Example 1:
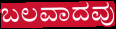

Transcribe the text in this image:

ಬಲವಾದವು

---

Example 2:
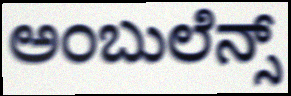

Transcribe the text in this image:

ಅಂಬುಲೆನ್ಸ್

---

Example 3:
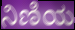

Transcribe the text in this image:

ನಿಣಿಯ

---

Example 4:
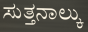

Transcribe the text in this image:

ಸುತ್ತನಾಲ್ಕು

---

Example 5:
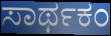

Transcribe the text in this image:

ಸಾರ್ಥಕಂ